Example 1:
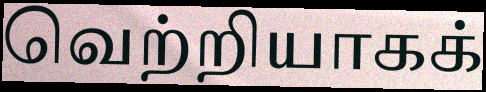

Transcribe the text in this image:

வெற்றியாகக்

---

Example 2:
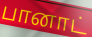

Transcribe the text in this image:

பானாட்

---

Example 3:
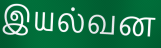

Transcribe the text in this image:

இயல்வன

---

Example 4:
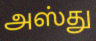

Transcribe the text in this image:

அஸ்து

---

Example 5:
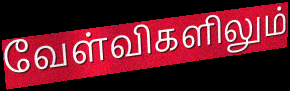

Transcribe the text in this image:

வேள்விகளிலும்